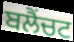
ਬਲੈਂਚਟ